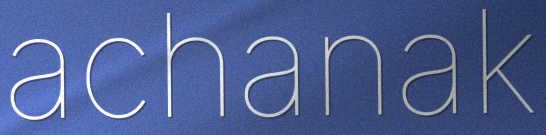
achanak